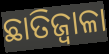
ଛାତିଜ୍ୱାଳା